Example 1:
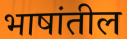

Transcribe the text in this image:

भाषांतील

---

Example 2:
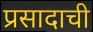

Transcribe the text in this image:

प्रसादाची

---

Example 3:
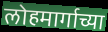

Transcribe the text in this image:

लोहमार्गाच्या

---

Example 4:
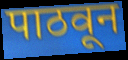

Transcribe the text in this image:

पाठवून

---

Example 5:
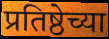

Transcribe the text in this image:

प्रतिष्ठेच्या